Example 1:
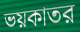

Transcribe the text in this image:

ভয়কাতর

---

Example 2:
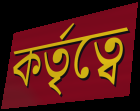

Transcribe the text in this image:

কর্তৃত্বে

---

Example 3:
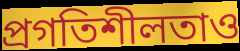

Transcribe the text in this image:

প্রগতিশীলতাও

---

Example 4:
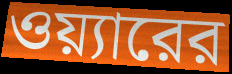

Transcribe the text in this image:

ওয়্যারের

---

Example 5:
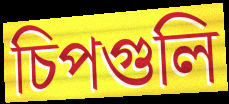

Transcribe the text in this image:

চিপগুলি